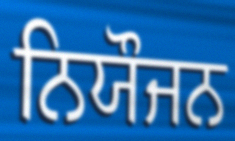
ਨਿਯੌਜਨ